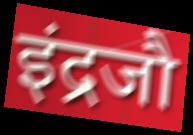
इंद्रजौ